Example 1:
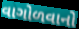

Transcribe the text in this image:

વાગોળવાનો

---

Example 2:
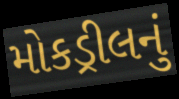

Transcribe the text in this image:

મોકડ્રીલનું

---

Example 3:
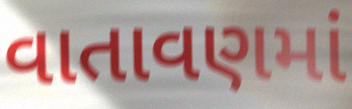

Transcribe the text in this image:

વાતાવણમાં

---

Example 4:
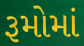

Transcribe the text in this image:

રૂમોમાં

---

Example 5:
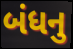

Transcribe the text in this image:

બંધનુ